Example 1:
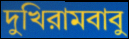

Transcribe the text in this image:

দুখিরামবাবু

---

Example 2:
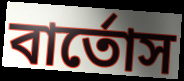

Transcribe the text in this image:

বার্তোস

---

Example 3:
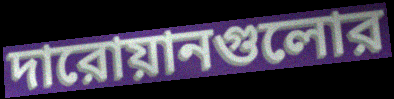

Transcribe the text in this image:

দারোয়ানগুলোর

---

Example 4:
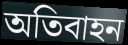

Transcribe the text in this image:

অতিবাহন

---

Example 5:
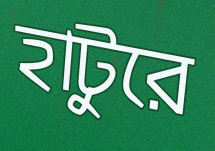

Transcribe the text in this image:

হাটুরে